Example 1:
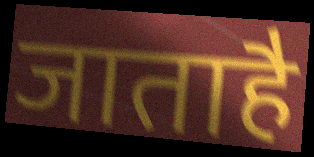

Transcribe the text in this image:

जाताहै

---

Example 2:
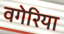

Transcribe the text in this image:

वगेरिया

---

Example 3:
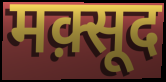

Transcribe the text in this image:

मक़्सूद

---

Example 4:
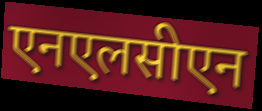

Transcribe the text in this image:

एनएलसीएन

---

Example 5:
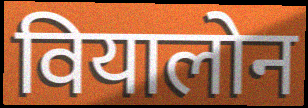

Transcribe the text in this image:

वियालोन